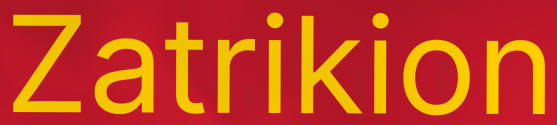
Zatrikion